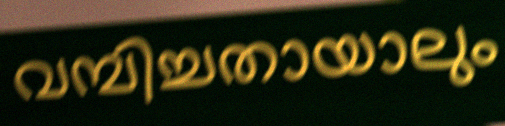
വമ്പിച്ചതായാലും